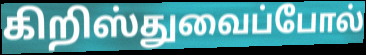
கிறிஸ்துவைப்போல்